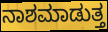
ನಾಶಮಾಡುತ್ತ